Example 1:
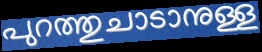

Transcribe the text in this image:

പുറത്തുചാടാനുള്ള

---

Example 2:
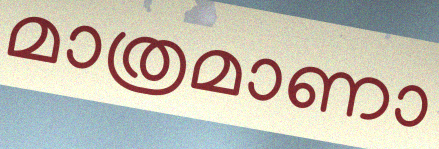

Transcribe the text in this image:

മാത്രമാണാ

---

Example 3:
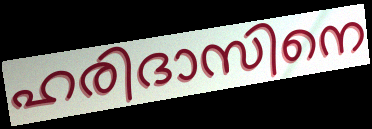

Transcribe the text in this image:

ഹരിദാസിനെ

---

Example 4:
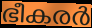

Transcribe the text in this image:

ഭീകരർ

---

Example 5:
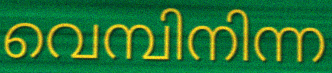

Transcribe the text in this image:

വെമ്പിനിന്ന